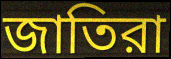
জাতিরা